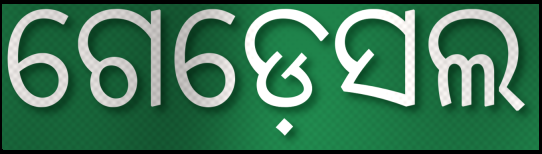
ଗେଡ଼େସଲ